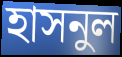
হাসনুল